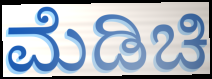
ಮೆಡಿಚಿ